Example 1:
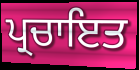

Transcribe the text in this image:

ਪ੍ਰਚਾਇਤ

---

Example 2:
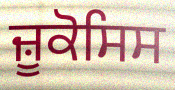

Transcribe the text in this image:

ਜ਼ੂਕੋਸਿਸ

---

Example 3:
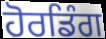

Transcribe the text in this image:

ਹੋਰਡਿੰਗ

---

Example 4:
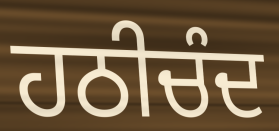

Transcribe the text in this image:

ਹਠੀਚੰਦ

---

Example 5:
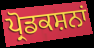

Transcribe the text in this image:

ਪ੍ਰੋਡਕਸ਼ਨਾਂ